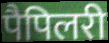
पैपिलरी